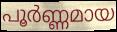
പൂർണ്ണമായ